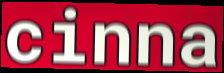
cinna